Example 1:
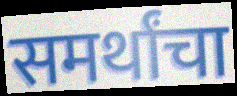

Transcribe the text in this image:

समर्थांचा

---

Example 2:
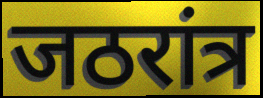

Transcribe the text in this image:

जठरांत्र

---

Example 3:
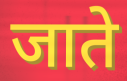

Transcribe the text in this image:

जाते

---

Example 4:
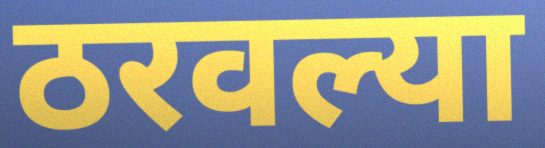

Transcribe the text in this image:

ठरवल्या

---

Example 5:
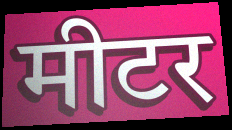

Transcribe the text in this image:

मीटर